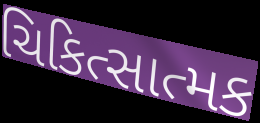
ચિકિત્સાત્મક